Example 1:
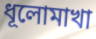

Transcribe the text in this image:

ধূলোমাখা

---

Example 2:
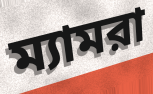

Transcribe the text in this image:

ম্যামরা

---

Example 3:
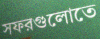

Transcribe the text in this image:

সফরগুলোতে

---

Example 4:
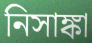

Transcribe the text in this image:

নিসাঙ্কা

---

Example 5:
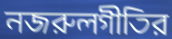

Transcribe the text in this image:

নজরুলগীতির